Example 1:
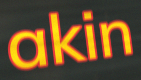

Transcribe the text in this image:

akin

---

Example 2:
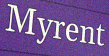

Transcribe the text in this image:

Myrent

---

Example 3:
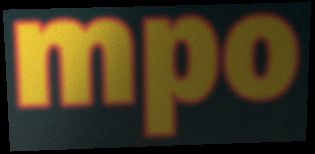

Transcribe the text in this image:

mpo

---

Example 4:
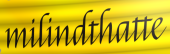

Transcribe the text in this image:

milindthatte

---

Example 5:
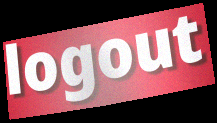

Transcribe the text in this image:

logout